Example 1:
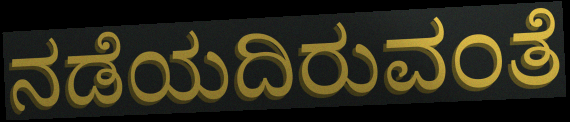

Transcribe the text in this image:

ನಡೆಯದಿರುವಂತೆ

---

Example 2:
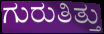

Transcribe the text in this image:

ಗುರುತಿತ್ತು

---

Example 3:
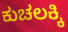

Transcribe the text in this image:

ಕುಚಲಕ್ಕಿ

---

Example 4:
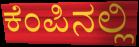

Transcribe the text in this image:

ಕೆಂಪಿನಲ್ಲಿ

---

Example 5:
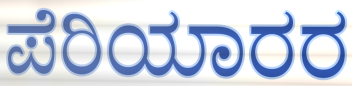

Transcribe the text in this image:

ಪೆರಿಯಾರರ